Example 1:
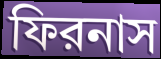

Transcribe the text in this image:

ফিরনাস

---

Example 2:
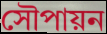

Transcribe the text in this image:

সৌপায়ন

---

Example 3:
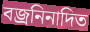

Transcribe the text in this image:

বজ্রনিনাদিত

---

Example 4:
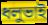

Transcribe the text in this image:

ধলুভাই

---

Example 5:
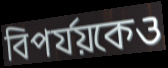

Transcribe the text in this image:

বিপর্যয়কেও